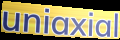
uniaxial